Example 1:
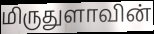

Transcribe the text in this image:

மிருதுளாவின்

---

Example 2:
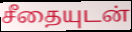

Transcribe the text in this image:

சீதையுடன்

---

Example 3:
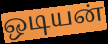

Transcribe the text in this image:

ஒடியன்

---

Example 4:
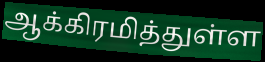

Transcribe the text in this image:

ஆக்கிரமித்துள்ள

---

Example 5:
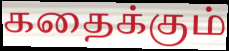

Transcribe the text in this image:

கதைக்கும்